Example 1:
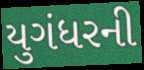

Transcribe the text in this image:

યુગંધરની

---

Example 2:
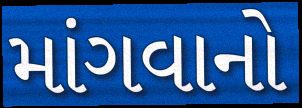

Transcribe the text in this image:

માંગવાનો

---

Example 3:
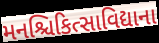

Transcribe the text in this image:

મનશ્ચિકિત્સાવિદ્યાના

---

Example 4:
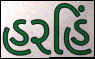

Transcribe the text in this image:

હરહિં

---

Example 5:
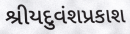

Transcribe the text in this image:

શ્રીયદુવંશપ્રકાશ